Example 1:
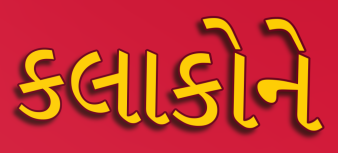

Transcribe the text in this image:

કલાકોને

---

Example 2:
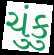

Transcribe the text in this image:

ચુંકુ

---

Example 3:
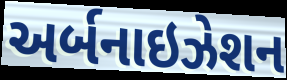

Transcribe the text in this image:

અર્બનાઇઝેશન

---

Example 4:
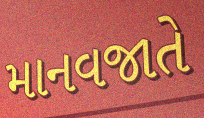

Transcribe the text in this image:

માનવજાતે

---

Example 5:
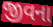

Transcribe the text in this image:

જીવના